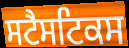
ਸਟੈਸਟਿਕਸ